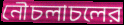
নৌচলাচলের